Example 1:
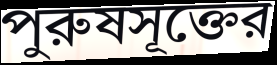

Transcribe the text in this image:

পুরুষসূক্তের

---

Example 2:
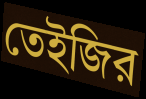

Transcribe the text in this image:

তেইজির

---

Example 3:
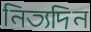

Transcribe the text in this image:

নিত্যদিন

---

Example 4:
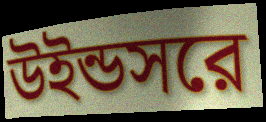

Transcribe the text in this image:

উইন্ডসরে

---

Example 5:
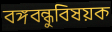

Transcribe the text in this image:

বঙ্গবন্ধুবিষয়ক